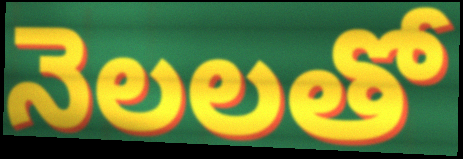
నెలలతో